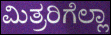
ಮಿತ್ರರಿಗೆಲ್ಲಾ